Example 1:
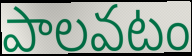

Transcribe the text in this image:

పాలవటం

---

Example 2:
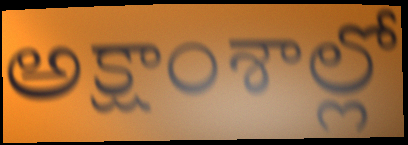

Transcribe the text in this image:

అక్షాంశాల్లో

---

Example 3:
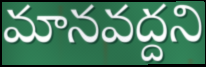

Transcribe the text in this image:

మానవద్దని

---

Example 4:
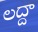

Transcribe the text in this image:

లద్దా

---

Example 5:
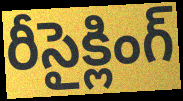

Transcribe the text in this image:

రీసైక్లింగ్